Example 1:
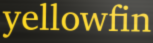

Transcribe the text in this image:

yellowfin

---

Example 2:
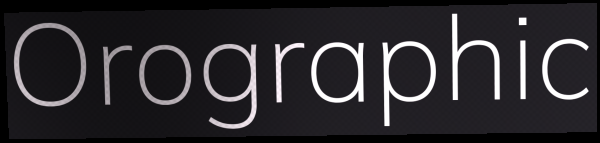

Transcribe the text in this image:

Orographic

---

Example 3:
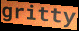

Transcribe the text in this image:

gritty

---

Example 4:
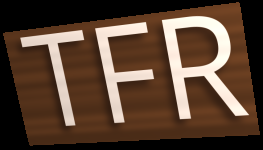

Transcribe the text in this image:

TFR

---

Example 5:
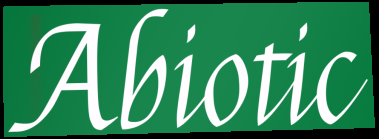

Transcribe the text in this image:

Abiotic